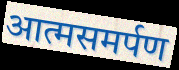
आत्मसमर्पण